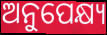
ଅନୁପେକ୍ଷ୍ୟ